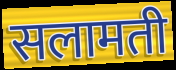
सलामती